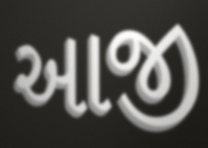
આજી